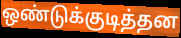
ஒண்டுக்குடித்தன